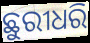
ଛୁରୀଧରି